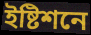
ইষ্টিশনে